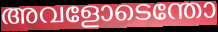
അവളോടെന്തോ